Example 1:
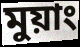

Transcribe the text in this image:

মুয়াং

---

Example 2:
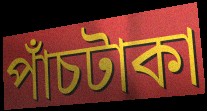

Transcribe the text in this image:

পাঁচটাকা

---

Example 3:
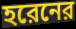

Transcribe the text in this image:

হরেনের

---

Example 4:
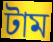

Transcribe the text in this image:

টাম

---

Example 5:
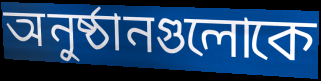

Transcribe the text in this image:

অনুষ্ঠানগুলোকে